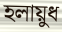
হলায়ুধ